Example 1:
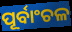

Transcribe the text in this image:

ପୂର୍ବାଂଚଳ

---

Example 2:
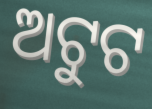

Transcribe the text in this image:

ଅଟୁଟ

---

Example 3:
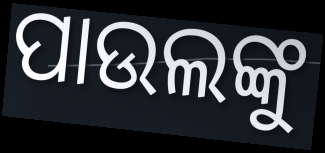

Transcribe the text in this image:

ପାଉଲଙ୍କୁ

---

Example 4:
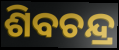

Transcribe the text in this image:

ଶିବଚନ୍ଦ୍ର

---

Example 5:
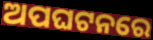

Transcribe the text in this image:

ଅପଘଟନରେ